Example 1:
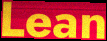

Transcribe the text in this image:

Lean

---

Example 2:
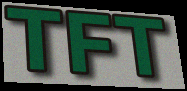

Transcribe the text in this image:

TFT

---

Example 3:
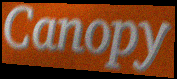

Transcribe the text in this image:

Canopy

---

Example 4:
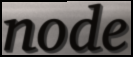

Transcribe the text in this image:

node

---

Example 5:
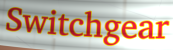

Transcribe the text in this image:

Switchgear